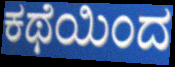
ಕಥೆಯಿಂದ